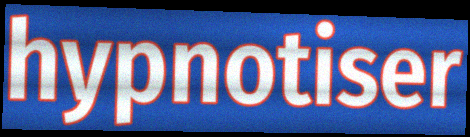
hypnotiser